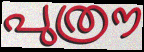
പുത്രൗ